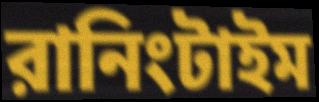
রানিংটাইম